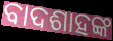
ବାଦଶାହଙ୍କ